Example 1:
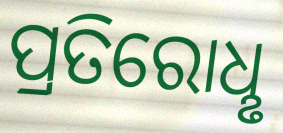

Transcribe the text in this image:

ପ୍ରତିରୋଧୢ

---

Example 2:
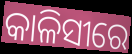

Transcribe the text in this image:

କାଳିସୀରେ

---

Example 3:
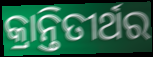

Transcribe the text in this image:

କ୍ରାନ୍ତିତୀର୍ଥର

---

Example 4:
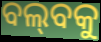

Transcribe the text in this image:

ବଲ୍‌ବକୁ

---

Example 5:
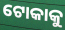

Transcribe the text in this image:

ଟୋକାକୁ